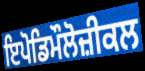
ਇਪੋਡਿਮੌਲੋਜ਼ੀਕਲ